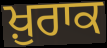
ਖ਼ੁਰਾਕ